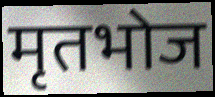
मृतभोज